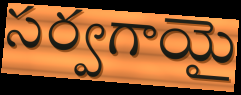
సర్వగాయై